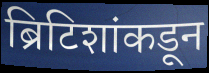
ब्रिटिशांकडून